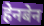
हेनबेन